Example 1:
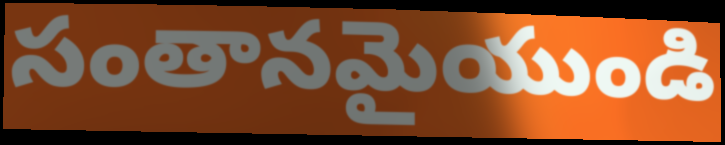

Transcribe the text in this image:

సంతానమైయుండి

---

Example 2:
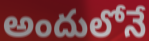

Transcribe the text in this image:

అందులోనే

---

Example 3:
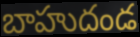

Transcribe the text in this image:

బాహుదండ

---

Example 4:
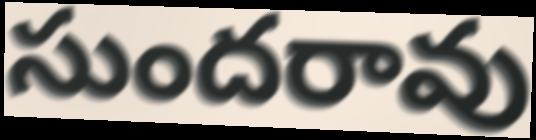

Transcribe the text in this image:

సుందరావు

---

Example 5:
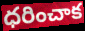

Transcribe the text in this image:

ధరించాక